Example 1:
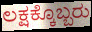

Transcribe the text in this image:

ಲಕ್ಷಕ್ಕೊಬ್ಬರು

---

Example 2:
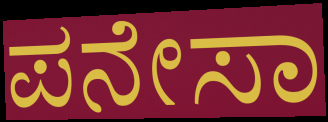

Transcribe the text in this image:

ಪನೇಸಾ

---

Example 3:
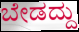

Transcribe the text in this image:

ಬೇಡದ್ದು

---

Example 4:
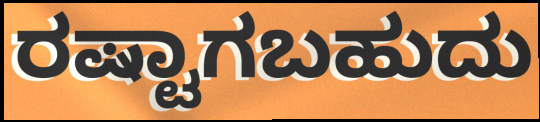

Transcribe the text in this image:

ರಷ್ಟಾಗಬಹುದು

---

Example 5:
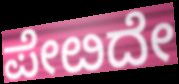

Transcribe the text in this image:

ಪೇೞದೇ